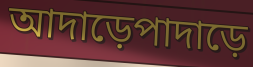
আদাড়েপাদাড়ে